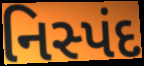
નિસ્પંદ